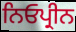
ਨਿਓਪ੍ਰੀਨ